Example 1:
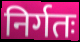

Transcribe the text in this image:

निर्गतः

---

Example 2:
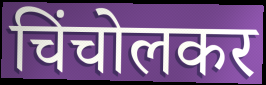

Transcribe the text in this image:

चिंचोलकर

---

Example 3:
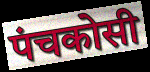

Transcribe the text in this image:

पंचकोसी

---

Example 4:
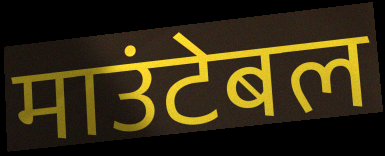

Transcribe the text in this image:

माउंटेबल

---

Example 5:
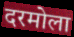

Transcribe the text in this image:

दरमोला